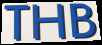
THB